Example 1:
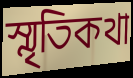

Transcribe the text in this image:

স্মৃতিকথা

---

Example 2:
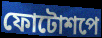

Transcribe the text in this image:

ফোটোশপে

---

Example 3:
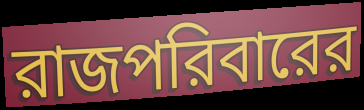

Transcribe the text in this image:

রাজপরিবারের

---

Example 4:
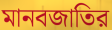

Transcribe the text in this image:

মানবজাতির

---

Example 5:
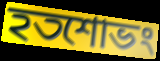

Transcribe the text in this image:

হতশোভং